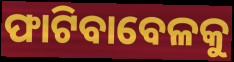
ଫାଟିବାବେଳକୁ